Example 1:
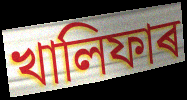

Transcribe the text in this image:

খালিফাৰ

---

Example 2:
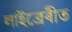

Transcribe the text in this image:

লাইব্ৰেৰীত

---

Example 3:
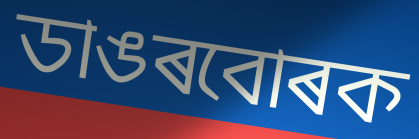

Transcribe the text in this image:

ডাঙৰবোৰক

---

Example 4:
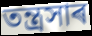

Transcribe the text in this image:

তন্ত্ৰসাৰ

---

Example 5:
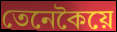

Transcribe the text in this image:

তেনেকৈয়ে